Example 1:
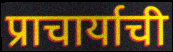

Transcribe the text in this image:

प्राचार्याची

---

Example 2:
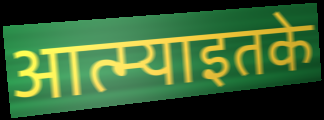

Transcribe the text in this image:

आत्म्याइतके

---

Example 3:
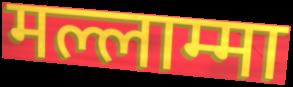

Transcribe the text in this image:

मल्लाम्मा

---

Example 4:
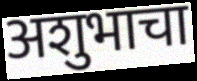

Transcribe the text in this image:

अशुभाचा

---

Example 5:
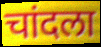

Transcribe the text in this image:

चांदला